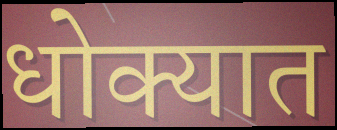
धोक्यात